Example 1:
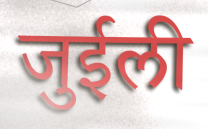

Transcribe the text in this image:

जुईली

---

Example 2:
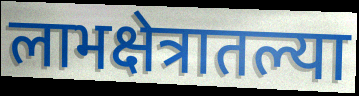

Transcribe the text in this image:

लाभक्षेत्रातल्या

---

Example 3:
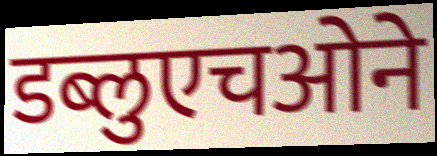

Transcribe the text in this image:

डब्लुएचओने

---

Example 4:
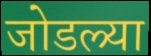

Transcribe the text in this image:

जोडल्या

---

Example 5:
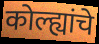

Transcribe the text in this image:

कोल्ह्यांचे